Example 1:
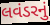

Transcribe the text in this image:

લવંડરનું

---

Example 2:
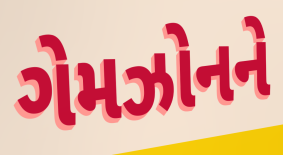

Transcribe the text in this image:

ગેમઝોનને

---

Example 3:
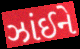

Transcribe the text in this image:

ઝાંઈને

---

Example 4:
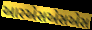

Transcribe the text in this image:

આરએસએસએસ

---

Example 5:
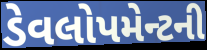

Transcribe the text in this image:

ડેવલોપમેન્ટની